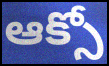
ఆక్సో